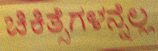
ಚಿಕಿತ್ಸೆಗಳನ್ನೆಲ್ಲ